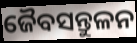
ଜୈବସନ୍ତୁଳନ